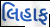
લિહાફ